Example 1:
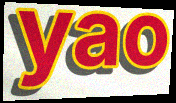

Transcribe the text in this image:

yao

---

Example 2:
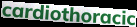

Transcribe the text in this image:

cardiothoracic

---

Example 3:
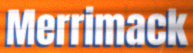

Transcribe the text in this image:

Merrimack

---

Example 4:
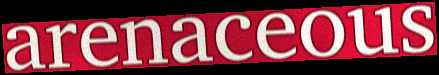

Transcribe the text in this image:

arenaceous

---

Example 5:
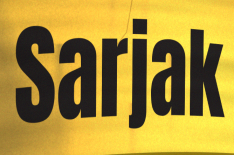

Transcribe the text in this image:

Sarjak